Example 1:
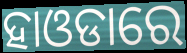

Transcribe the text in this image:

ହାଓଡାରେ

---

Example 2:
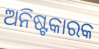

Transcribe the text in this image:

ଅନିଷ୍ଟକାରକ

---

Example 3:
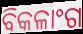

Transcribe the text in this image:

ବିକଳାଂଗ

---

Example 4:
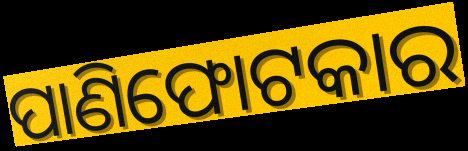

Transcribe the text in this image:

ପାଣିଫୋଟକାର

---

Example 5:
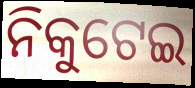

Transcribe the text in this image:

ନିକୁଟେଇ